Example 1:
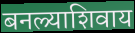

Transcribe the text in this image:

बनल्याशिवाय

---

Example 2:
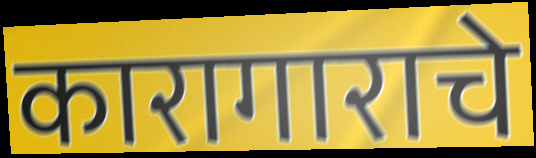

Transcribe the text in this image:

कारागाराचे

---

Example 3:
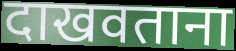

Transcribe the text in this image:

दाखवताना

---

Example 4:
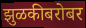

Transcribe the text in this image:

झुळकीबरोबर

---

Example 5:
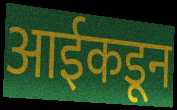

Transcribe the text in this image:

आईकडून